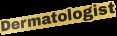
Dermatologist